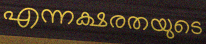
എന്നക്ഷരതയുടെ